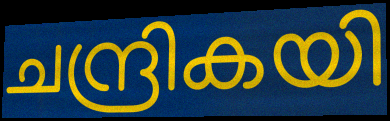
ചന്ദ്രികയി